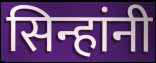
सिन्हांनी